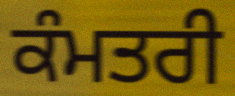
ਕੰਮਤਰੀ